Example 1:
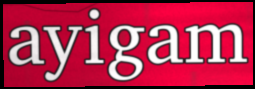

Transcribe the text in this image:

ayigam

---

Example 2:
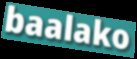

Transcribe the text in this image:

baalako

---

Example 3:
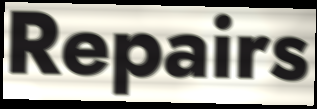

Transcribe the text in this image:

Repairs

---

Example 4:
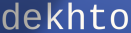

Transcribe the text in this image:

dekhto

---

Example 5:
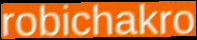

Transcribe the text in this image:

robichakro